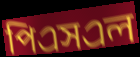
পিএসএল